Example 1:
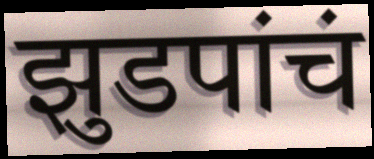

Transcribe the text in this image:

झुडपांचं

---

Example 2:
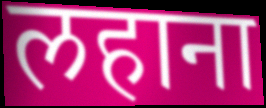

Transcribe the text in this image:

लहाना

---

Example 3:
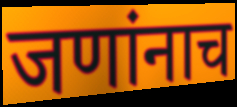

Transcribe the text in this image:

जणांनाच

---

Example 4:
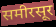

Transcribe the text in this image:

समीरसूर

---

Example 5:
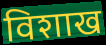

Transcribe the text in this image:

विशाख